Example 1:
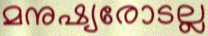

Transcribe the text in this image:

മനുഷ്യരോടല്ല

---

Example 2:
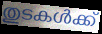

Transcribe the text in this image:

തുടകൾക്ക്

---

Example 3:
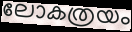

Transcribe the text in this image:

ലോകത്രയം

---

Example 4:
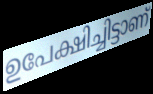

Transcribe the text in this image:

ഉപേക്ഷിച്ചിട്ടാണ്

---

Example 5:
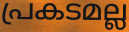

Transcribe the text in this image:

പ്രകടമല്ല